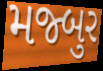
મજ્બુર